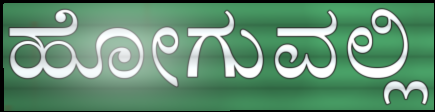
ಹೋಗುವಲ್ಲಿ